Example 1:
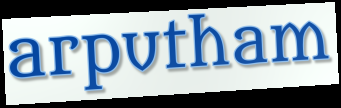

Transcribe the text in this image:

arputham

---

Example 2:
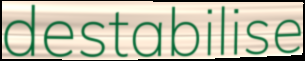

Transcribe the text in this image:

destabilise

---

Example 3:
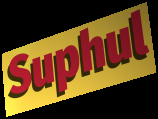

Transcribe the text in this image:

Suphul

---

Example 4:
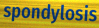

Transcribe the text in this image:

spondylosis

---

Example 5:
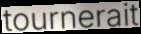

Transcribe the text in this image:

tournerait